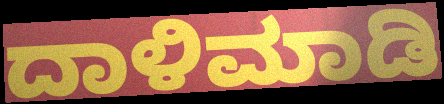
ದಾಳಿಮಾಡಿ